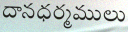
దానధర్మములు